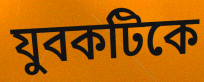
যুবকটিকে